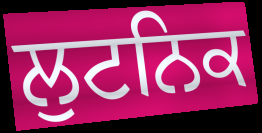
ਲੁਟਨਿਕ